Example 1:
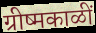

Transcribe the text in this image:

ग्रीष्मकाळीं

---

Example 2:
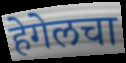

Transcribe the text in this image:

हेगेलचा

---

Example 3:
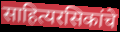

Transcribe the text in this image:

साहित्यरसिकांचे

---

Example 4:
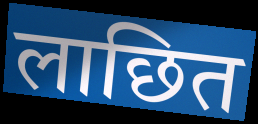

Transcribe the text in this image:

लाछित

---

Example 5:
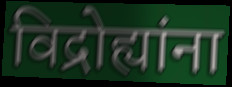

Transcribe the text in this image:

विद्रोह्यांना